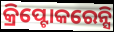
କ୍ରିପ୍ଟୋକରେନ୍ସି